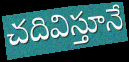
చదివిస్తూనే